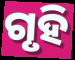
ଗୃହି